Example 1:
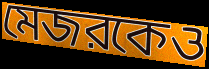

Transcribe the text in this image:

মেজরকেও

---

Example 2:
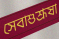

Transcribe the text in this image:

সেবাশুশ্রূষা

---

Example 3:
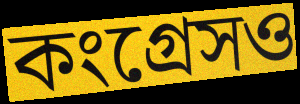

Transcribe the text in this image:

কংগ্রেসও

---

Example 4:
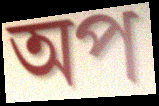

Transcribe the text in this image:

অপ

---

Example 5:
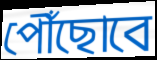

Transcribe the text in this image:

পৌঁছোবে